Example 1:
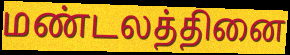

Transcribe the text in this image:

மண்டலத்தினை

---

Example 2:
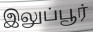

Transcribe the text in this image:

இலுப்பூர்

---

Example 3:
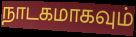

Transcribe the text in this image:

நாடகமாகவும்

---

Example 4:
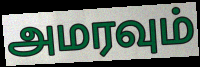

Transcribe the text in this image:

அமரவும்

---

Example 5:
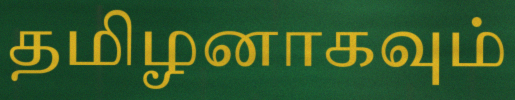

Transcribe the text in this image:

தமிழனாகவும்